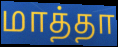
மாத்தா